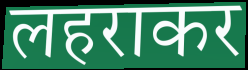
लहराकर